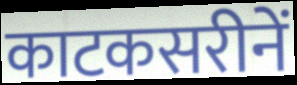
काटकसरीनें